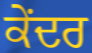
ਕੇੰਦਰ